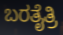
ಬರತೈತ್ರಿ